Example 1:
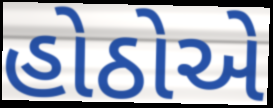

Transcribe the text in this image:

હોઠોએ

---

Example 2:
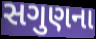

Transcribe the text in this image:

સગુણના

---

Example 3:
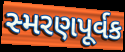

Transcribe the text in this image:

સ્મરણપૂર્વક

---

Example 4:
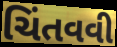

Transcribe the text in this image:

ચિંતવવી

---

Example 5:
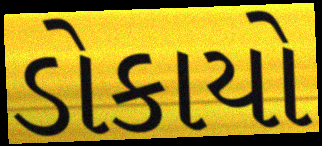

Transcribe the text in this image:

ડોકાયો